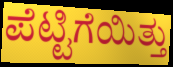
ಪೆಟ್ಟಿಗೆಯಿತ್ತು